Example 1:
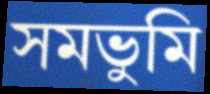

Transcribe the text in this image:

সমভুমি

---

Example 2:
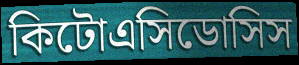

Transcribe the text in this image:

কিটোএসিডোসিস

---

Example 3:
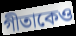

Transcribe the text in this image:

গীতাকেও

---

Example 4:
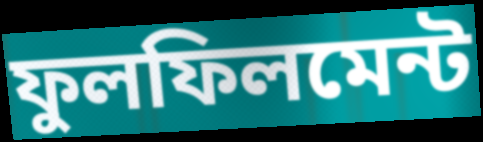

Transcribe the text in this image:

ফুলফিলমেন্ট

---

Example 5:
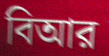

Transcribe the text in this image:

বিআর